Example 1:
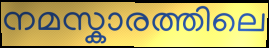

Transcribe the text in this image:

നമസ്കാരത്തിലെ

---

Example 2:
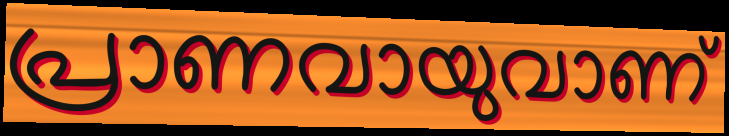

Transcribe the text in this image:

പ്രാണവായുവാണ്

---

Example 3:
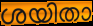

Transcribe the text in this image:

ശയിതാ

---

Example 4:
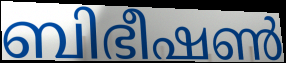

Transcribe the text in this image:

ബിഭീഷൺ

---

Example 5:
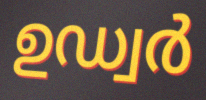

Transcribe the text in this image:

ഉഡ്വർ